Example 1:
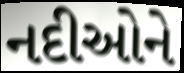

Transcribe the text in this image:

નદીઓને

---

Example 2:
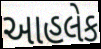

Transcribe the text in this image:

આહલેક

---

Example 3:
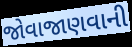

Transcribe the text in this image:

જોવાજાણવાની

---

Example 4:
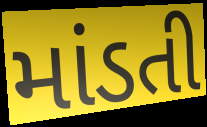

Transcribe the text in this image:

માંડતી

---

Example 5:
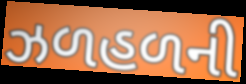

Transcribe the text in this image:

ઝળહળની